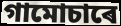
গামোচাৰে